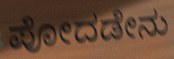
ಪೋದಡೇನು